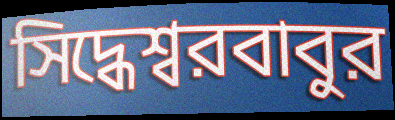
সিদ্ধেশ্বরবাবুর